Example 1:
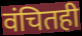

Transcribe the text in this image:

वंचितही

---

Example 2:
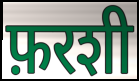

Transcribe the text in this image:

फ़रशी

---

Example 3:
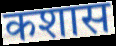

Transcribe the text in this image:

कशास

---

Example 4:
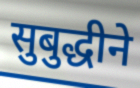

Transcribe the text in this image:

सुबुद्धीने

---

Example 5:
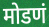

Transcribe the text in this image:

मोडणं